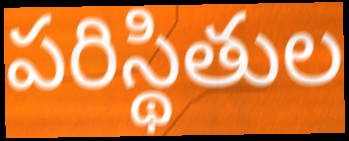
పరిస్థితుల